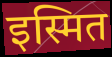
इस्मित